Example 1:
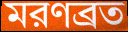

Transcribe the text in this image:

মরণব্রত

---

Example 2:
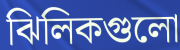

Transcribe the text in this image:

ঝিলিকগুলো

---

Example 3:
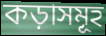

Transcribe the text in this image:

কড়াসমূহ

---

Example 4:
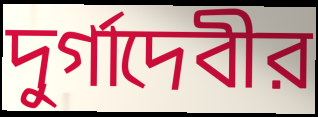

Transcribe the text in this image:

দুর্গাদেবীর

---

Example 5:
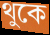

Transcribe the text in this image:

থুকে